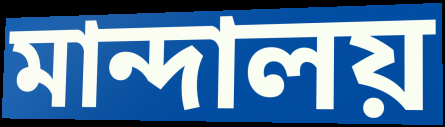
মান্দালয়